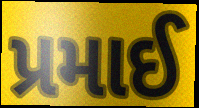
પ્રમાઈ